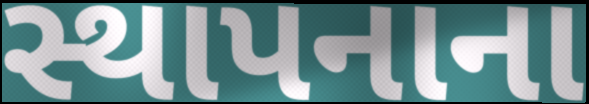
સ્થાપનાના